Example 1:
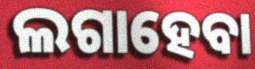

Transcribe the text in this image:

ଲଗାହେବା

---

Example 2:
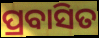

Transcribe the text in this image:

ପ୍ରବାସିତ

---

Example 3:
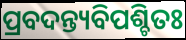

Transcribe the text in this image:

ପ୍ରବଦନ୍ତ୍ୟବିପଶ୍ଚିତଃ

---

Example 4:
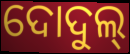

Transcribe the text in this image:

ଦୋଦୁଲ୍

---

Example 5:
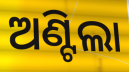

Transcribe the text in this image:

ଅଣ୍ଟିଲା